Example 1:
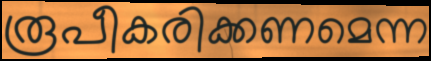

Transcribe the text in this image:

രൂപീകരിക്കണമെന്ന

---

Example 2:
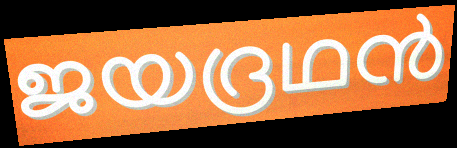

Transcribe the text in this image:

ജയദ്രഥൻ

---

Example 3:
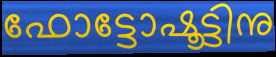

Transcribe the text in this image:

ഫോട്ടോഷൂട്ടിനു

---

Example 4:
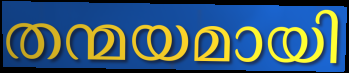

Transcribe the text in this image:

തന്മയമായി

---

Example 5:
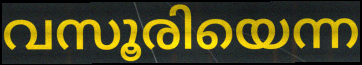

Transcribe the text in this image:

വസൂരിയെന്ന